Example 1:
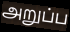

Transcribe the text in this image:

அறுப்ப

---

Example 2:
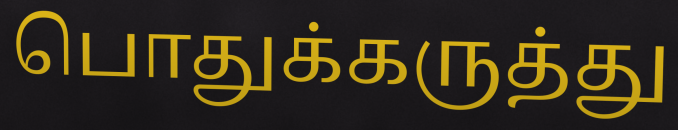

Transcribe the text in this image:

பொதுக்கருத்து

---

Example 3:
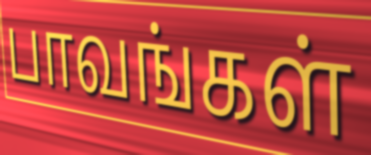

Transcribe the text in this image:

பாவங்கள்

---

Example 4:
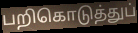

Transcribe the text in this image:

பறிகொடுத்துப்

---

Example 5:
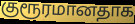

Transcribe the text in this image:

குரூரமானதாக